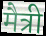
मैत्री